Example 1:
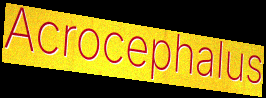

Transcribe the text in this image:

Acrocephalus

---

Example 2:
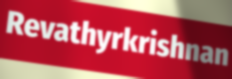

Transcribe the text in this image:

Revathyrkrishnan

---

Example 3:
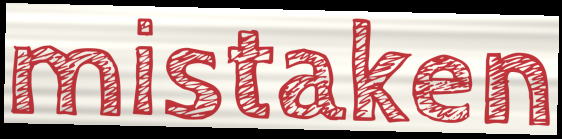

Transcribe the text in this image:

mistaken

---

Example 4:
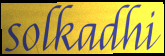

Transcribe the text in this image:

solkadhi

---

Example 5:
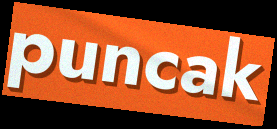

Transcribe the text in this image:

puncak